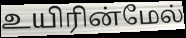
உயிரின்மேல்